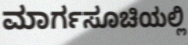
ಮಾರ್ಗಸೂಚಿಯಲ್ಲಿ